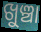
ଖୁଞ୍ଚା